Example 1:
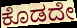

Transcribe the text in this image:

ಕೊಡದೇ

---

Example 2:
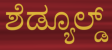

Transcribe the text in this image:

ಶೆಡ್ಯೂಲ್ಡ್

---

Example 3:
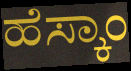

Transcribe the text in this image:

ಹೆಸ್ಕಾಂ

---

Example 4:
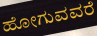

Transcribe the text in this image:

ಹೋಗುವವರೆ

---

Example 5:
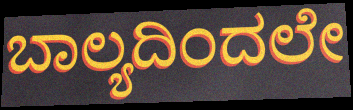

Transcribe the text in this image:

ಬಾಲ್ಯದಿಂದಲೇ